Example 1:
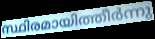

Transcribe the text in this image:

സ്ഥിരമായിത്തീർന്നു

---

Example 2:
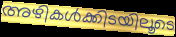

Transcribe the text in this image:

അഴികൾക്കിടയിലൂടെ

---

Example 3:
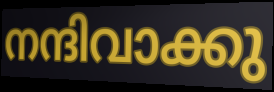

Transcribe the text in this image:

നന്ദിവാക്കു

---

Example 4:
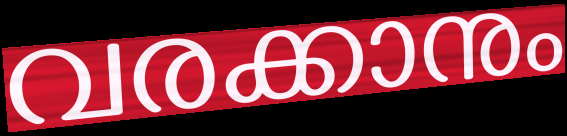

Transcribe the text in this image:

വരക്കാനും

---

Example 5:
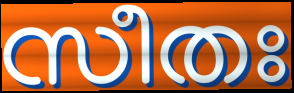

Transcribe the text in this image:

സീതഃ